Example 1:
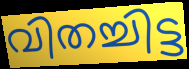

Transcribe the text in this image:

വിതച്ചിട്ട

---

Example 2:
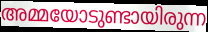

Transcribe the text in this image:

അമ്മയോടുണ്ടായിരുന്ന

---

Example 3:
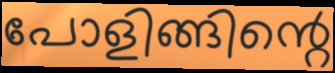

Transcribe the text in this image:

പോളിങ്ങിന്റെ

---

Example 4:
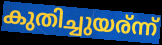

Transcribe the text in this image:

കുതിച്ചുയര്ന്ന്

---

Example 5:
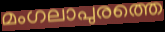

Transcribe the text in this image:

മംഗലാപുരത്തെ